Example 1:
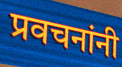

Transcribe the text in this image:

प्रवचनांनी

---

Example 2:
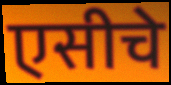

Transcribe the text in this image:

एसीचे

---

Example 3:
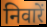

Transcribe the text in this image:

निवारें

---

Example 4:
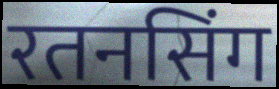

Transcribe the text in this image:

रतनसिंग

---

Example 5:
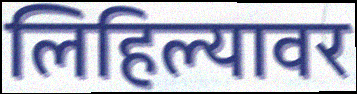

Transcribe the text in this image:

लिहिल्यावर